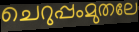
ചെറുപ്പംമുതലേ